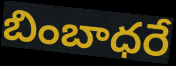
బింబాధరే